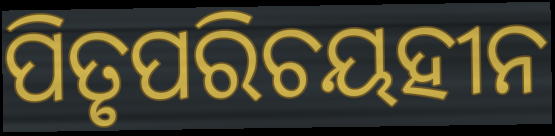
ପିତୃପରିଚୟହୀନ